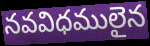
నవవిధములైన